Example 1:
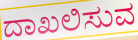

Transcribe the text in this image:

ದಾಖಲಿಸುವ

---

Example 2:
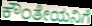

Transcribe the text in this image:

ಕೌಂತೇಯನಿಗೆ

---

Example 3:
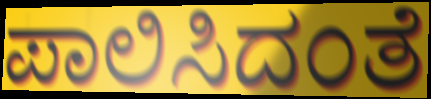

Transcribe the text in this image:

ಪಾಲಿಸಿದಂತೆ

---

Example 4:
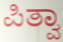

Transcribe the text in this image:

ಪಿತ್ವಾ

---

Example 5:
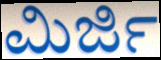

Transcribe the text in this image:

ಮಿರ್ಜಿ